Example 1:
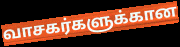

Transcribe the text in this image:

வாசகர்களுக்கான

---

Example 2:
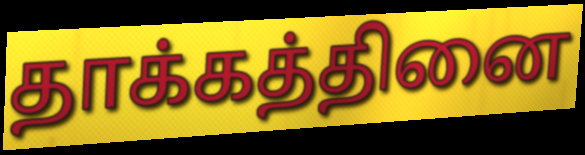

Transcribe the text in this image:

தாக்கத்தினை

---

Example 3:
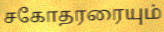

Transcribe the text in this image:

சகோதரரையும்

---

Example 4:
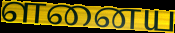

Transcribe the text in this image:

ளனைய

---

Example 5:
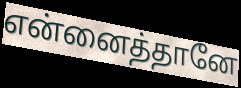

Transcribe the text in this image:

என்னைத்தானே